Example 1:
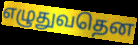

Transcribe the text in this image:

எழுதுவதென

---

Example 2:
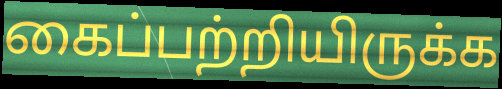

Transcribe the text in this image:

கைப்பற்றியிருக்க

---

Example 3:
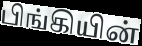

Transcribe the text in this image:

பிங்கியின்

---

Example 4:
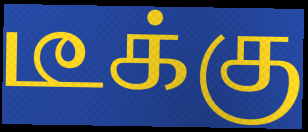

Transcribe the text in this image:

டீக்கு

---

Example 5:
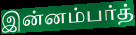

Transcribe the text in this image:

இன்னம்பர்த்